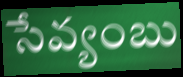
సేవ్యంబు